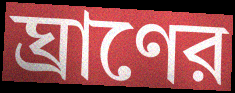
ঘ্রাণের